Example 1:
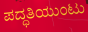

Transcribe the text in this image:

ಪದ್ಧತಿಯುಂಟು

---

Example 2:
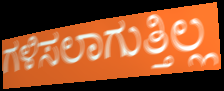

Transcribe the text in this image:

ಗಳಿಸಲಾಗುತ್ತಿಲ್ಲ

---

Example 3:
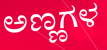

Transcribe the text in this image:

ಅಣ್ಣಗಳ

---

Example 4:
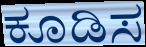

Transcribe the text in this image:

ಕೂಡಿಸ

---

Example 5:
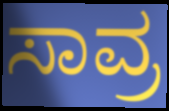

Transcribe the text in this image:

ಸಾವ್ರ